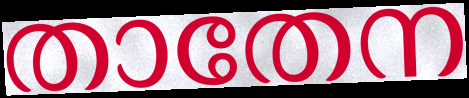
താതേന